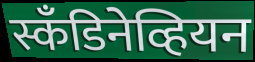
स्कँडिनेव्हियन